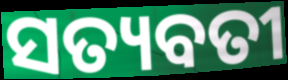
ସତ୍ୟବତୀ